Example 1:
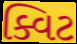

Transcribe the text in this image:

ક્વિટ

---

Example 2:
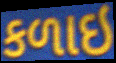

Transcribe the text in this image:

કળાઇ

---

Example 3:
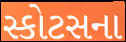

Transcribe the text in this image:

સ્કોટસના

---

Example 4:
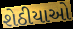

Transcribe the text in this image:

શેઠીયાઓ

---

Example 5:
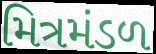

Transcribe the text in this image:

મિત્રમંડળ